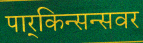
पार्किन्सन्सवर